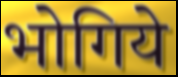
भोगिये